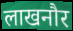
लाखनौर